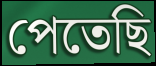
পেতেছি